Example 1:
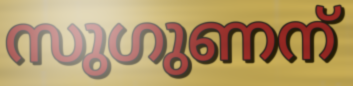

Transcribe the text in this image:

സുഗുണന്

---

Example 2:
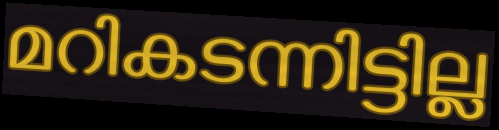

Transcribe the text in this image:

മറികടന്നിട്ടില്ല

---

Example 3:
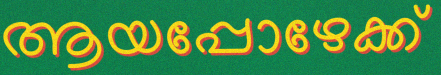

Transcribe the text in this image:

ആയപ്പോഴേക്ക്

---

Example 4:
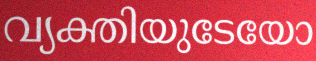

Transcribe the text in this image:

വ്യക്തിയുടേയോ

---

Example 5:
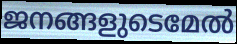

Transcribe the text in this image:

ജനങ്ങളുടെമേൽ